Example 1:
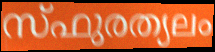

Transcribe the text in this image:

സ്ഫുരത്യലം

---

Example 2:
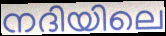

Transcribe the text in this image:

നദിയിലെ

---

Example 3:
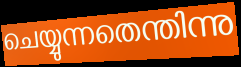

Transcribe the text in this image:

ചെയ്യുന്നതെന്തിന്നു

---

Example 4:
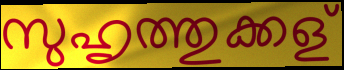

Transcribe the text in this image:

സുഹൃത്തുക്കള്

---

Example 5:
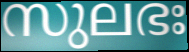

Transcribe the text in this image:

സുലഭഃ